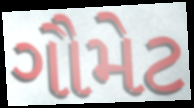
ગૌમેટ